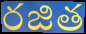
రజిత